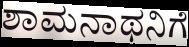
ಶಾಮನಾಥನಿಗೆ